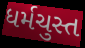
ધર્મચુસ્ત